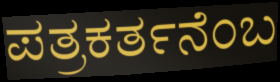
ಪತ್ರಕರ್ತನೆಂಬ